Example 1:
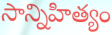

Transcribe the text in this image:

సాన్నిహిత్యం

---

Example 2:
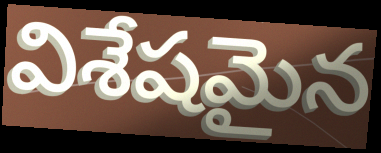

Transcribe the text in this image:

విశేషమైన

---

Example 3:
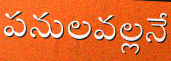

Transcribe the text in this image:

పనులవల్లనే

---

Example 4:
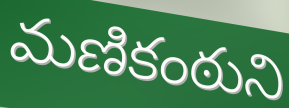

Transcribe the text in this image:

మణికంఠుని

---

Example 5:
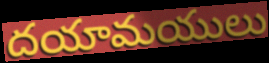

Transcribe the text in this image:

దయామయులు